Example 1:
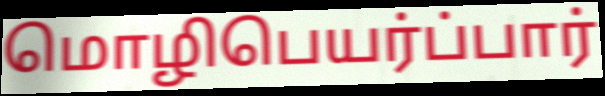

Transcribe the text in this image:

மொழிபெயர்ப்பார்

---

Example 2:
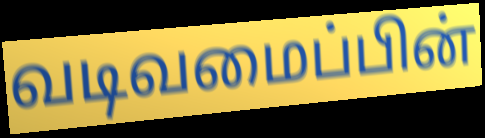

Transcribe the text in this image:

வடிவமைப்பின்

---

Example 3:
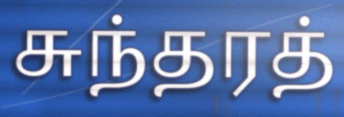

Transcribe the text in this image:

சுந்தரத்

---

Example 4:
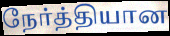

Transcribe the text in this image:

நேர்த்தியான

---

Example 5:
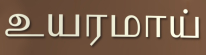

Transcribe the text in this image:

உயரமாய்